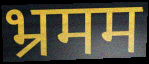
भ्रमम